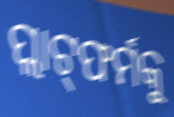
ପ୍ଲାଟ୍‌ଫର୍ମକୁ